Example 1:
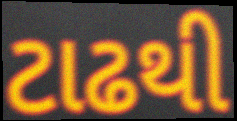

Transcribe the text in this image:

ટાઢથી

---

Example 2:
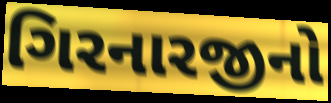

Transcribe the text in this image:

ગિરનારજીનો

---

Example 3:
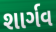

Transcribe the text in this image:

શાર્ગવ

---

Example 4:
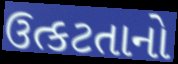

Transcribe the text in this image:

ઉત્કટતાનો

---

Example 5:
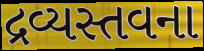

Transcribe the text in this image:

દ્રવ્યસ્તવના